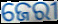
ଜେରୀ